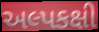
અલ્પકક્ષી